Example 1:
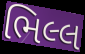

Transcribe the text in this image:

ભિલ્લ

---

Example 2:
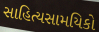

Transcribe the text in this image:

સાહિત્યસામયિકો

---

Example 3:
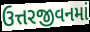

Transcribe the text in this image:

ઉત્તરજીવનમાં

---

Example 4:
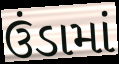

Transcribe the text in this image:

ઉંડામાં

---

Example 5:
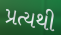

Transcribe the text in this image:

પ્રત્યથી